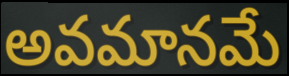
అవమానమే